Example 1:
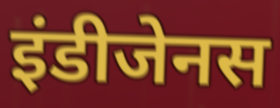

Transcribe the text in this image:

इंडीजेनस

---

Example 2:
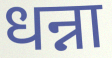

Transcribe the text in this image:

धन्ना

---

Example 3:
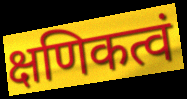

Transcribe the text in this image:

क्षणिकत्वं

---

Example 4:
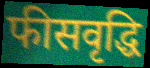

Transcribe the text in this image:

फीसवृद्धि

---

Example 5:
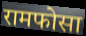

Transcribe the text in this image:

रामफोसा